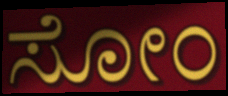
ಸೋಂ